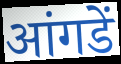
आंगडें